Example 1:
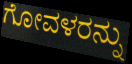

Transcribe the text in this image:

ಗೋವಳರನ್ನು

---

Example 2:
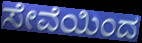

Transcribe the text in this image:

ಸೇವೆಯಿಂದ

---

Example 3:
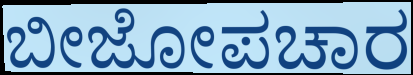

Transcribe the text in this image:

ಬೀಜೋಪಚಾರ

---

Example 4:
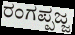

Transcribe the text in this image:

ರಂಗಪ್ಪಜ್ಜ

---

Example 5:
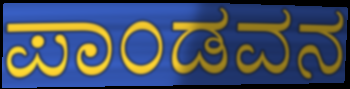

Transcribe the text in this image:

ಪಾಂಡವನ